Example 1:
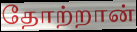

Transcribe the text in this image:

தோற்றான்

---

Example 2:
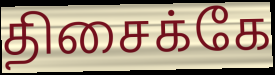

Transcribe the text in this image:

திசைக்கே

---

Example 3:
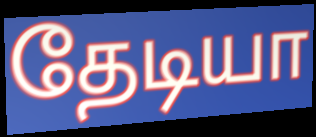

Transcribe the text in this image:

தேடியா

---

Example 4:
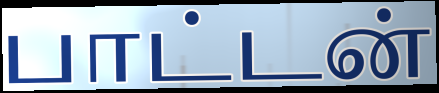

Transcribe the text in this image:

பாட்டன்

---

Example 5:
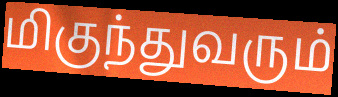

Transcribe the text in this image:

மிகுந்துவரும்